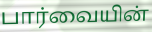
பார்வையின்